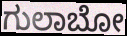
ಗುಲಾಬೋ